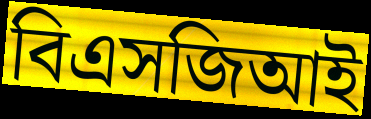
বিএসজিআই